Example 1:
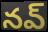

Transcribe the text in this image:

నవ్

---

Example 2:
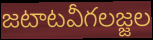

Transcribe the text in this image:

జటాటవీగలజ్జల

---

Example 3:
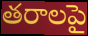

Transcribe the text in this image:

తరాలపై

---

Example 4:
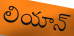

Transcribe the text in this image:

లియాన్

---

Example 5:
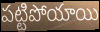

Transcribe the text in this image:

పట్టిపోయాయి